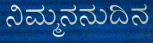
ನಿಮ್ಮನನುದಿನ